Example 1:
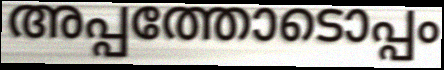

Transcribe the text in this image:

അപ്പത്തോടൊപ്പം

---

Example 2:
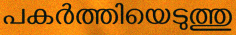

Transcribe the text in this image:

പകർത്തിയെടുത്തു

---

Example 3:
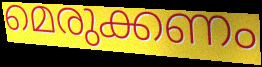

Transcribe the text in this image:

മെരുക്കണം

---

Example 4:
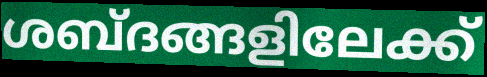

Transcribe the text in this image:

ശബ്ദങ്ങളിലേക്ക്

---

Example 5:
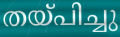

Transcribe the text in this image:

തയ്പിച്ചു